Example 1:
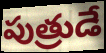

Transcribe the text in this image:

పుత్రుడే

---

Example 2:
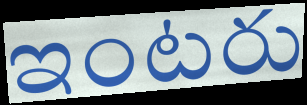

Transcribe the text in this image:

ఇంటరు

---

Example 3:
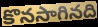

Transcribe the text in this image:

కొనసాగినది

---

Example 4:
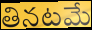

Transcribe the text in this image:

తినటమే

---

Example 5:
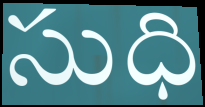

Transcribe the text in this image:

సుధి